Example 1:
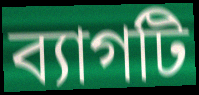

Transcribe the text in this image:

ব্যাগটি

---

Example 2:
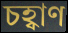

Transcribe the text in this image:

চহ্বাণ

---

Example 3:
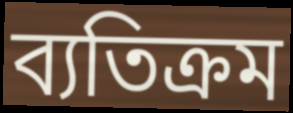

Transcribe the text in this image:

ব্যতিক্রম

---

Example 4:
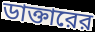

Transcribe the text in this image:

ডাক্তারের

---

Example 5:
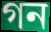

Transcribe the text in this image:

গন